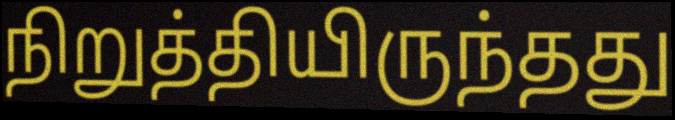
நிறுத்தியிருந்தது